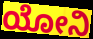
ಯೋನಿ